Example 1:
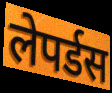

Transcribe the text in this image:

लेपर्डस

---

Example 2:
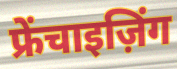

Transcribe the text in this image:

फ्रेंचाइज़िंग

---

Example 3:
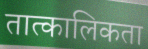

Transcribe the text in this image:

तात्कालिकता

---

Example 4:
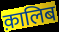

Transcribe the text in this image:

क़ालिब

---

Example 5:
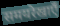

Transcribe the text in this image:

समयरेखाएँ